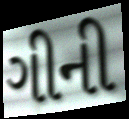
ગીની